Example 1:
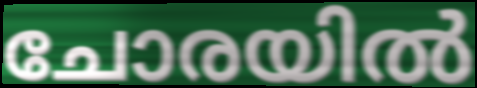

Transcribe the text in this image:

ചോരയിൽ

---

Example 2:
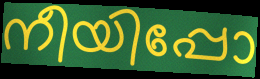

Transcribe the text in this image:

നീയിപ്പോ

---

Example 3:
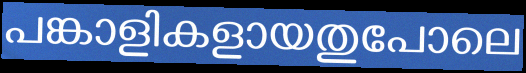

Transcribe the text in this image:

പങ്കാളികളായതുപോലെ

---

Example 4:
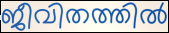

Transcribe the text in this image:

ജീവിതത്തിൽ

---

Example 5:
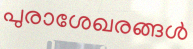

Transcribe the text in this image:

പുരാശേഖരങ്ങൾ